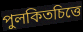
পুলকিতচিত্তে